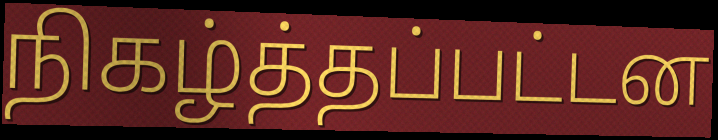
நிகழ்த்தப்பட்டன